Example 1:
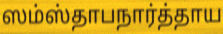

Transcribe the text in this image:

ஸம்ஸ்தாபநார்த்தாய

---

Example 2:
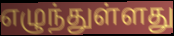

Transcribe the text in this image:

எழுந்துள்ளது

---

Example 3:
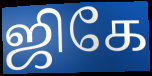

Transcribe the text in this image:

ஜிகே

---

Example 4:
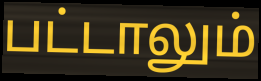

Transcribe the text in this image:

பட்டாலும்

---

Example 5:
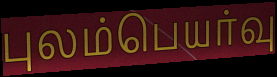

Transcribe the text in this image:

புலம்பெயர்வு